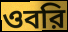
ওবরি